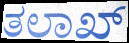
ತಲಾಖ್